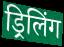
ड्रिलिंग